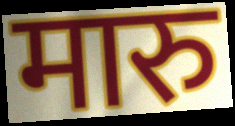
मारु